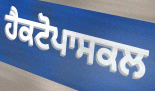
ਹੈਕਟੋਪਾਸਕਲ